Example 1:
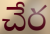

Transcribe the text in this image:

చేర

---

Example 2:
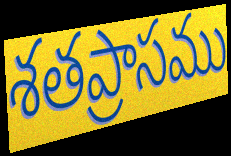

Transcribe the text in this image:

శతప్రాసము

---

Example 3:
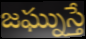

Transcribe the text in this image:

జఘ్నుస్తే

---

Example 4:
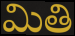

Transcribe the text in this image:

మితి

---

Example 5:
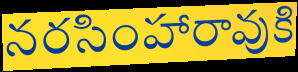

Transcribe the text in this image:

నరసింహారావుకి